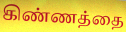
கிண்ணத்தை